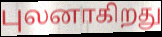
புலனாகிறது